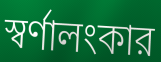
স্বর্ণালংকার